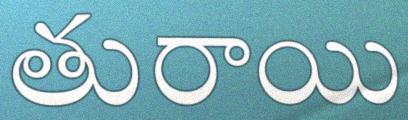
తురాయి